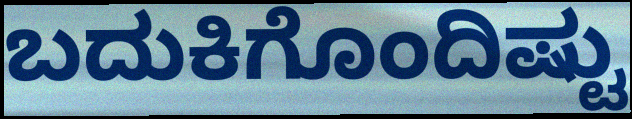
ಬದುಕಿಗೊಂದಿಷ್ಟು